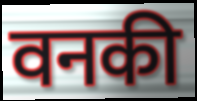
वनकी